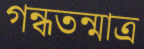
গন্ধতন্মাত্র